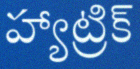
హ్యాట్రిక్